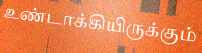
உண்டாக்கியிருக்கும்